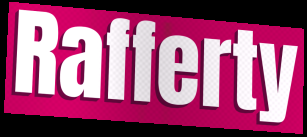
Rafferty